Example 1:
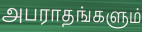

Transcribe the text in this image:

அபராதங்களும்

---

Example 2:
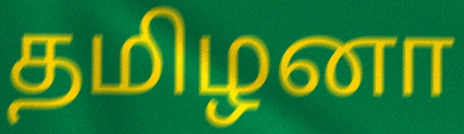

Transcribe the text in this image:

தமிழனா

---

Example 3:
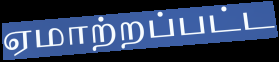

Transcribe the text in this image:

ஏமாற்றப்பட்ட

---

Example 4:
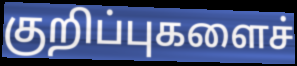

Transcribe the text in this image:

குறிப்புகளைச்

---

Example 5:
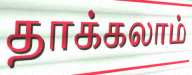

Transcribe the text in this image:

தாக்கலாம்